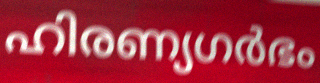
ഹിരണ്യഗർഭം